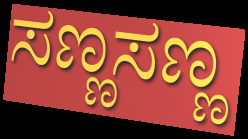
ಸಣ್ಣಸಣ್ಣ